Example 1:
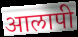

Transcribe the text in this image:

आलापी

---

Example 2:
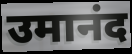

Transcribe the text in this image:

उमानंद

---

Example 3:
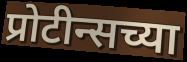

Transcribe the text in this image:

प्रोटीन्सच्या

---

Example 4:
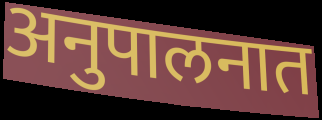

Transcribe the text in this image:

अनुपालनात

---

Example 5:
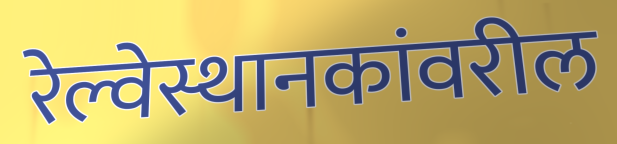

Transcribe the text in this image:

रेल्वेस्थानकांवरील